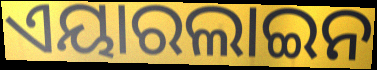
ଏୟାରଲାଇନ